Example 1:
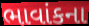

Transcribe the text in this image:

ભાવાંકના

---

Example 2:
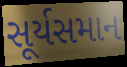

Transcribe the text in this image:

સૂર્યસમાન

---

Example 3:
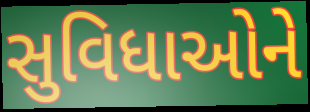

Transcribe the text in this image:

સુવિધાઓને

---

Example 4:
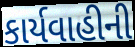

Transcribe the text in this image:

કાર્યવાહીની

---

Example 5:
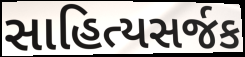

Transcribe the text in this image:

સાહિત્યસર્જક